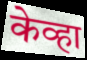
केव्हा